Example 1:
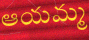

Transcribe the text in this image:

ఆయమ్మ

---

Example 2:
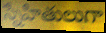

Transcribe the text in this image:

స్నేహితులుగా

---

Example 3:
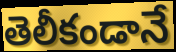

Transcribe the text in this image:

తెలీకండానే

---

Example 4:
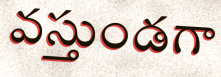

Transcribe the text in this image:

వస్తుండగా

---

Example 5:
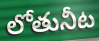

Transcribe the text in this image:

లోతునీట